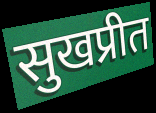
सुखप्रीत